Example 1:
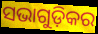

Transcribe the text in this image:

ସଭାଗୁଡ଼ିକର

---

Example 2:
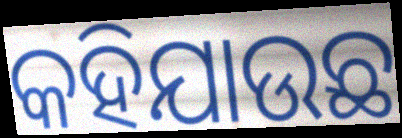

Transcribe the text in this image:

କହିଯାଉଛ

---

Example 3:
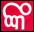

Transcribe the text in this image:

ଙ୍କ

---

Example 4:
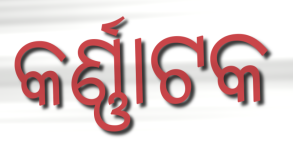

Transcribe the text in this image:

କର୍ଣ୍ଣାଟକ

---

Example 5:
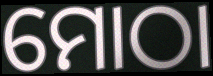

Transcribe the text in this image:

ମୋଠା